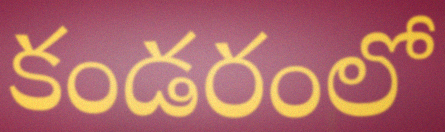
కండరంలో